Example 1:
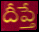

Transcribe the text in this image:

దీప్తే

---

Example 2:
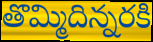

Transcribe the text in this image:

తొమ్మిదిన్నరకి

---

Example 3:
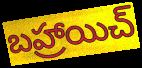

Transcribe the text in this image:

బహ్రాయిచ్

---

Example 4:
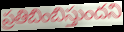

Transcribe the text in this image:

ప్రతిబింబిస్తుందని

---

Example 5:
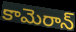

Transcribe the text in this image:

కామెరాన్